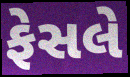
ફેસલે